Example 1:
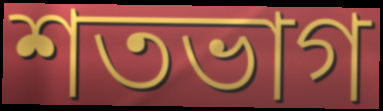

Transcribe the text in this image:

শতভাগ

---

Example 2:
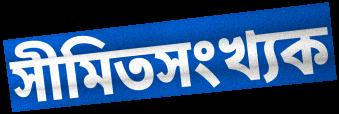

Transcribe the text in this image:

সীমিতসংখ্যক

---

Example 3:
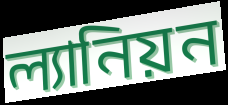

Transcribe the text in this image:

ল্যানিয়ন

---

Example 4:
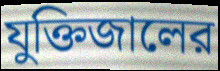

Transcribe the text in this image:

যুক্তিজালের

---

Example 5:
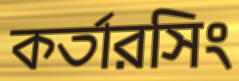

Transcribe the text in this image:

কর্তারসিং